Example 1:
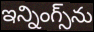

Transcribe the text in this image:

ఇన్నింగ్స్‌ను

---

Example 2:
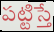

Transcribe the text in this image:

పట్టిస్తే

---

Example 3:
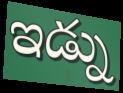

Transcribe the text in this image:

ఇడ్ను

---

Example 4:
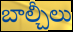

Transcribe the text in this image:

బాల్చీలు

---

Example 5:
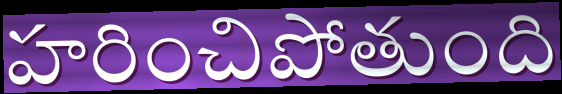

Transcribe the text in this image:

హరించిపోతుంది